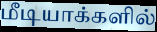
மீடியாக்களில்